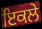
ਇਕਲੇ